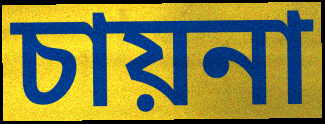
চায়না